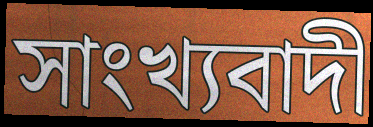
সাংখ্যবাদী